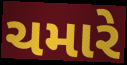
ચમારે